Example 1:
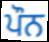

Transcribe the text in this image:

ਪੌਨ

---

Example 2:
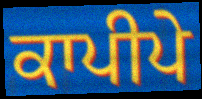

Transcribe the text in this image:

ਕਾਪੀਪੇ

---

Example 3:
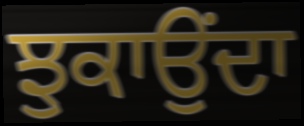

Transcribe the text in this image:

ਝੁਕਾਉਂਦਾ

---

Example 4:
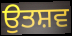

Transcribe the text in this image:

ਉਤਸ਼ਵ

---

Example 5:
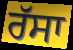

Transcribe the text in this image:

ਰੱਸਾ